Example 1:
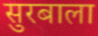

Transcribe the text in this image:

सुरबाला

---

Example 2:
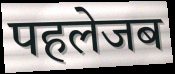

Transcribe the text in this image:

पहलेजब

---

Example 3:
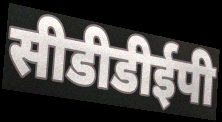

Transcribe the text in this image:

सीडीडीईपी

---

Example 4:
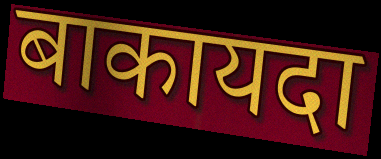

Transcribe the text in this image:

बाकायदा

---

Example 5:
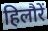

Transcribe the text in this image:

हिलौरें